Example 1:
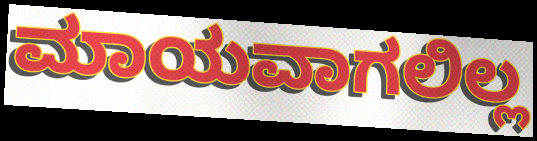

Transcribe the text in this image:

ಮಾಯವಾಗಲಿಲ್ಲ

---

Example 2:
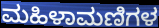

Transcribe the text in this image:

ಮಹಿಳಾಮಣಿಗಳ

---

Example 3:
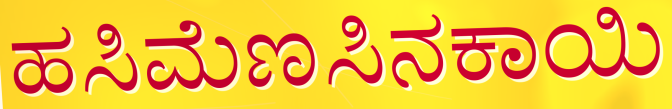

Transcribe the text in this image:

ಹಸಿಮೆಣಸಿನಕಾಯಿ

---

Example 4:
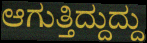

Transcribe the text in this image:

ಆಗುತ್ತಿದ್ದುದ್ದು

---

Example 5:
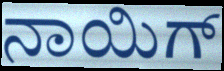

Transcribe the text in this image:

ನಾಯಿಗ್